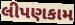
લીપણકામ